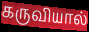
கருவியால்